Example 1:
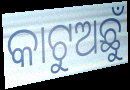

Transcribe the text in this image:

କାଟୁଅଛୁଁ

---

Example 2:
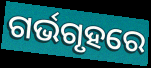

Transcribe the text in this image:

ଗର୍ଭଗୃହରେ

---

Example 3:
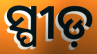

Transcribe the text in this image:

ସ୍ପୀଡ଼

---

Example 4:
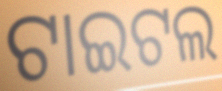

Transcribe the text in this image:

ଟାଇଟଲ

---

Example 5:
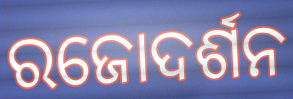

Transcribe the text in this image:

ରଜୋଦର୍ଶନ